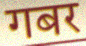
गबर